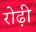
रोढ़ी